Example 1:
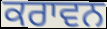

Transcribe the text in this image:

ਕਰਾਵਨ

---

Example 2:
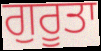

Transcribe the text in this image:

ਗੁਰੂਤਾ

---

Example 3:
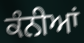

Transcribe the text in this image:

ਕੰਨੀਆਂ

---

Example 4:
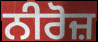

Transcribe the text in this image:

ਨੀਰੋਜ਼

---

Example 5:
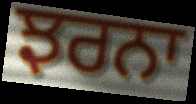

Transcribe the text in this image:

ਝਰਨਾ